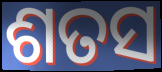
ଶତସ